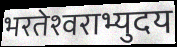
भरतेश्वराभ्युदय